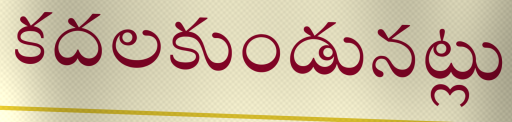
కదలకుండునట్లు